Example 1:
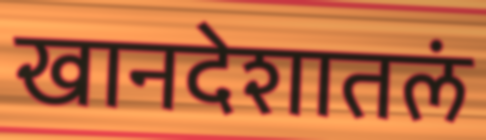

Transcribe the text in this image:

खानदेशातलं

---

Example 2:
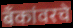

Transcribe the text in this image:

बँकांवरचे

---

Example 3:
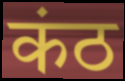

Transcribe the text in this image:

कंठ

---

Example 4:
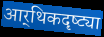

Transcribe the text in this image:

आर्थिकदृष्ट्या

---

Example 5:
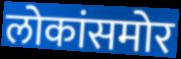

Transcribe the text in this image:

लोकांसमोर